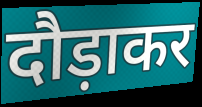
दौड़ाकर